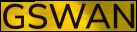
GSWAN